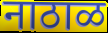
नाठाळ